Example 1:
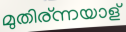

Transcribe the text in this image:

മുതിര്ന്നയാള്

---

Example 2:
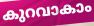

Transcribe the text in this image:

കുറവാകാം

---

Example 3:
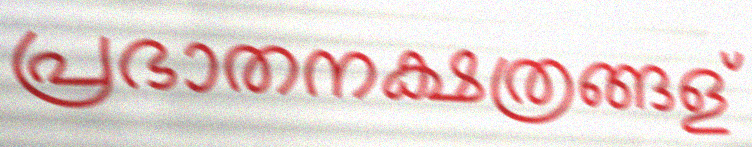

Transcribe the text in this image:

പ്രഭാതനക്ഷത്രങ്ങള്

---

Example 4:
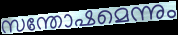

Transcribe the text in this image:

സന്തോഷമെന്നും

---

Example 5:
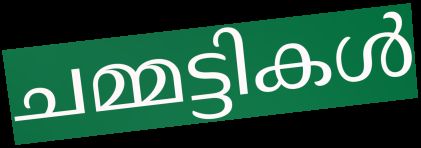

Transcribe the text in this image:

ചമ്മട്ടികൾ